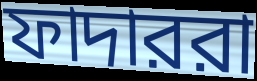
ফাদাররা